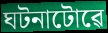
ঘটনাটোৱে